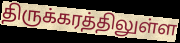
திருக்கரத்திலுள்ள